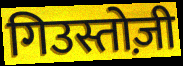
गिउस्तोज़ी